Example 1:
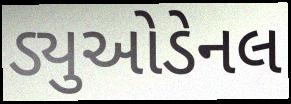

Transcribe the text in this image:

ડ્યુઓડેનલ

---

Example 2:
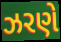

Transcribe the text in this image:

ઝરણે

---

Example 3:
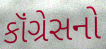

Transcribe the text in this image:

કૉંગ્રેસનો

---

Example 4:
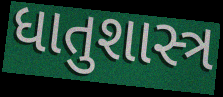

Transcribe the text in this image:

ધાતુશાસ્ત્ર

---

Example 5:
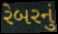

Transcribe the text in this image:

રેબરનું